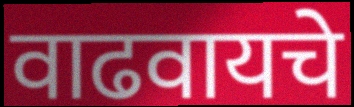
वाढवायचे